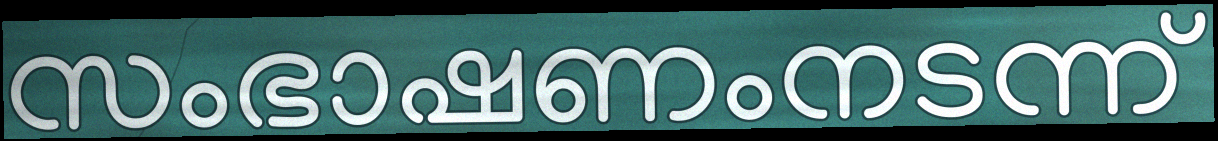
സംഭാഷണംനടന്ന്